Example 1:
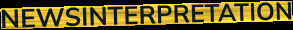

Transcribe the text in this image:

NEWSINTERPRETATION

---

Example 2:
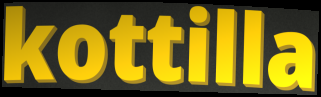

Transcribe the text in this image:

kottilla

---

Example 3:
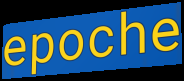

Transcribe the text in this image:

epoche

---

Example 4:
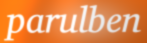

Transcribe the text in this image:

parulben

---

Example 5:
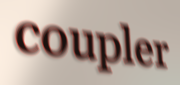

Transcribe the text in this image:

coupler